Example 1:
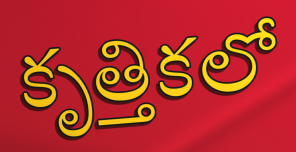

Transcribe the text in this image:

కృత్తికలో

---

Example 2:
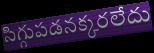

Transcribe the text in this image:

సిగ్గుపడనక్కరలేదు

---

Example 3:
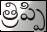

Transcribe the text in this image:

త్రిప్పి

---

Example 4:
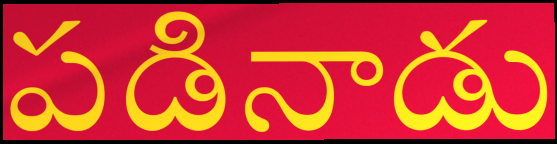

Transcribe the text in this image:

పడినాడు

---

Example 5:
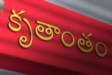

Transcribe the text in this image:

కృతాంతం